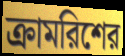
ক্রামরিশের